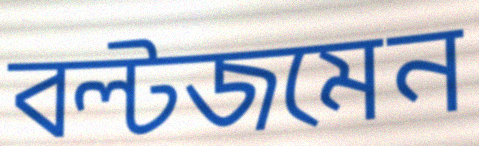
বল্টজমেন